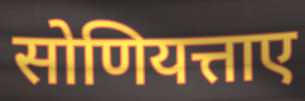
सोणियत्ताए